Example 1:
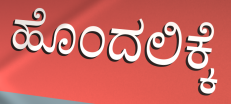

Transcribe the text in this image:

ಹೊಂದಲಿಕ್ಕೆ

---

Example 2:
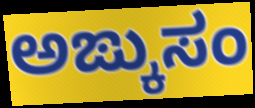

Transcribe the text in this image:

ಅಙ್ಕುಸಂ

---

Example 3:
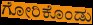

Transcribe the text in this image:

ಗೋರಿಕೊಂಡು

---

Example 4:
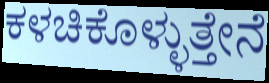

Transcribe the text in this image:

ಕಳಚಿಕೊಳ್ಳುತ್ತೇನೆ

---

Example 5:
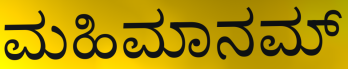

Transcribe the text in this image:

ಮಹಿಮಾನಮ್